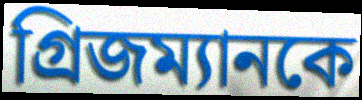
গ্রিজম্যানকে